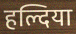
हल्दिया